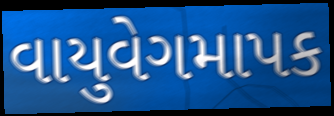
વાયુવેગમાપક